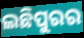
ଲଛିପୁରର